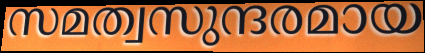
സമത്വസുന്ദരമായ